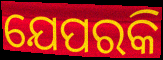
ଯେପରକି